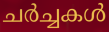
ചർച്ചകൾ